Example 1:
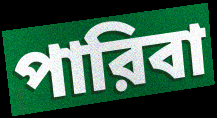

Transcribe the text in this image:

পারিবা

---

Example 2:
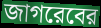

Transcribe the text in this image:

জাগরেবের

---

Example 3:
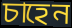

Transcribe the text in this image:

চাহেন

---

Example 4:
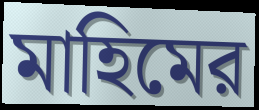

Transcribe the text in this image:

মাহিমের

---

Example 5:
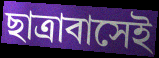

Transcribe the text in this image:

ছাত্রাবাসেই